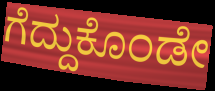
ಗೆದ್ದುಕೊಂಡೇ